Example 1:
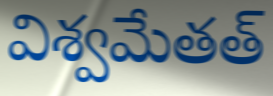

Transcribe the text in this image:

విశ్వమేతత్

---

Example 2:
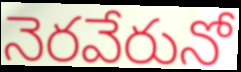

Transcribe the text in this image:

నెరవేరునో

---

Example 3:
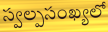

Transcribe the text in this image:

స్వల్పసంఖ్యలో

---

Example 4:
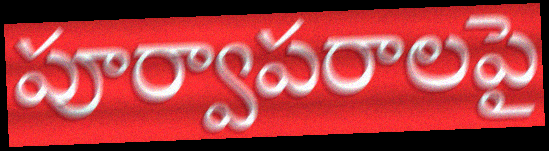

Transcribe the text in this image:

పూర్వాపరాలపై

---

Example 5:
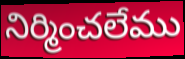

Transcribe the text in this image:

నిర్మించలేము